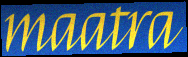
maatra